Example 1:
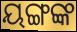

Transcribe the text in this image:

ୟଙ୍ଗଙ୍କ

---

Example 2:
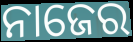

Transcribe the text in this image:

ନାଜେର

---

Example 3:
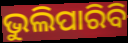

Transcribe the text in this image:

ଭୁଲିପାରିବି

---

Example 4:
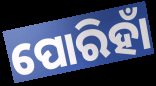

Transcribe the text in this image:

ପୋରିହାଁ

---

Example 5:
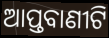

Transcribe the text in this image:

ଆପ୍ତବାଣୀଟି